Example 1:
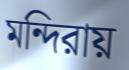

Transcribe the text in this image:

মন্দিরায়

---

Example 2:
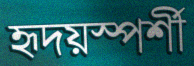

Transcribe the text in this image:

হৃদয়স্পর্শী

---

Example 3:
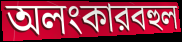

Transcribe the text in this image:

অলংকারবহুল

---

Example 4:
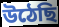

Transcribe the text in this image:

উঠেছি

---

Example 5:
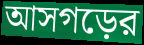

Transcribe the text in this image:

আসগড়ের